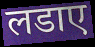
लडाए